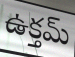
ఉక్తమ్